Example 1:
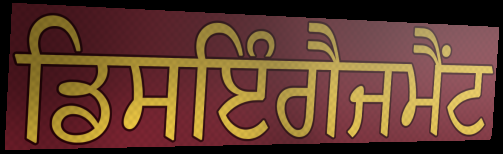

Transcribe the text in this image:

ਡਿਸਇੰਗੈਜਮੈਂਟ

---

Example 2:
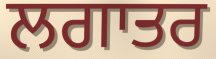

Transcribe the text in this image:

ਲਗਾਤਰ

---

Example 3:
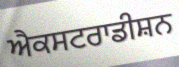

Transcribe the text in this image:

ਐਕਸਟਰਾਡੀਸ਼ਨ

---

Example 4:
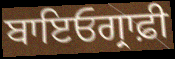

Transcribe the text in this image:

ਬਾਇਓਗ੍ਰਾਫ਼ੀ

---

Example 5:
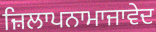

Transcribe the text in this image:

ਜ਼ਿਲਾਪਨਾਮਾਜਾਵੇਦ